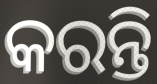
କରନ୍ତି